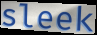
sleek